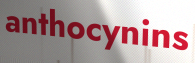
anthocynins